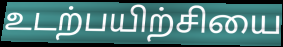
உடற்பயிற்சியை